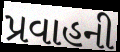
પ્રવાહની